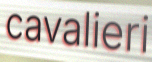
cavalieri